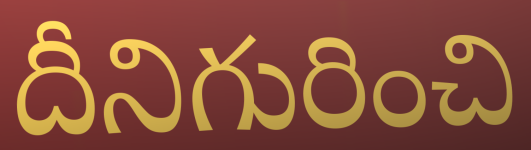
దీనిగురించి